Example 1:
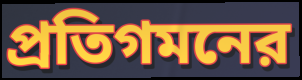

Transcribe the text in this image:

প্রতিগমনের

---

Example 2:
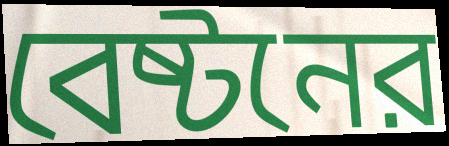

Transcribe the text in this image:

বেষ্টনের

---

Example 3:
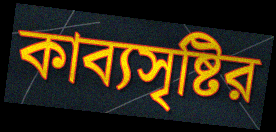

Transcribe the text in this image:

কাব্যসৃষ্টির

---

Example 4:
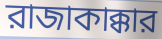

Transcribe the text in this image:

রাজাকাক্কার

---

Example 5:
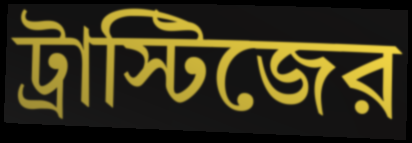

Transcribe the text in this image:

ট্রাস্টিজের